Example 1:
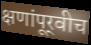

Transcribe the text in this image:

क्षणांपूर्वीच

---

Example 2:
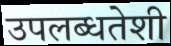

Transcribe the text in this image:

उपलब्धतेशी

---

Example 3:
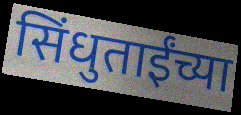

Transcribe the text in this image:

सिंधुताईंच्या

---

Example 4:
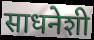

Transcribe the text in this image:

साधनेशी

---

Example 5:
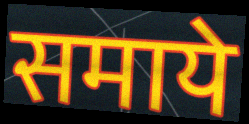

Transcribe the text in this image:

समाये